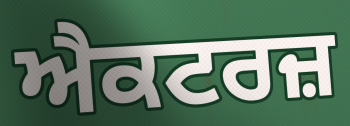
ਐਕਟਰਜ਼